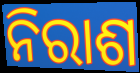
ନିରାଶ